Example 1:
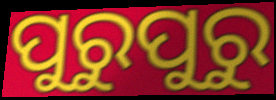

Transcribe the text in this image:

ପୁରୁପୁରୁ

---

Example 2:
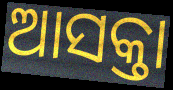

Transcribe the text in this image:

ଆସକ୍ତା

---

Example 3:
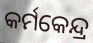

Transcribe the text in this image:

କର୍ମକେନ୍ଦ୍ର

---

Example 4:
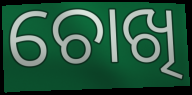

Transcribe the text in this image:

ଚୋଖି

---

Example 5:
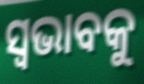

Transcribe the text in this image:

ସ୍ୱଭାବକୁ